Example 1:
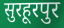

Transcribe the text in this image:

सुरहूरपुर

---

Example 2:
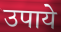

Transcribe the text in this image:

उपाये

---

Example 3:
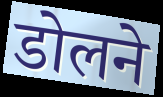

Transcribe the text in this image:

डोलने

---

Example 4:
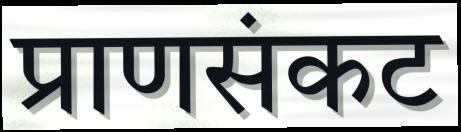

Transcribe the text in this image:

प्राणसंकट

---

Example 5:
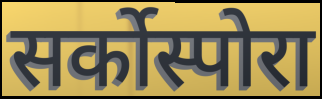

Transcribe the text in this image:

सर्कोस्पोरा